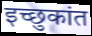
इच्छुकांत